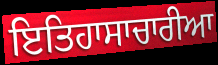
ਇਤਿਹਾਸਾਚਾਰੀਆ